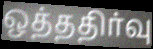
ஒத்ததிர்வு